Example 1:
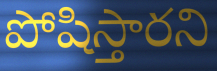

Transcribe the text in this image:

పోషిస్తారని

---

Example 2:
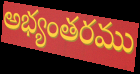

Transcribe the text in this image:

అభ్యంతరము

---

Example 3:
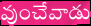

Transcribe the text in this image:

వుంచేవాడు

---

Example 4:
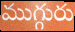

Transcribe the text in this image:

ముగ్గురు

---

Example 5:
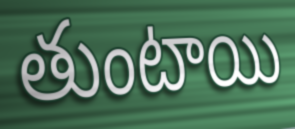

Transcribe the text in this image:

తుంటాయి